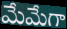
మేమేగా